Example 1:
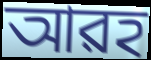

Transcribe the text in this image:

আৱহ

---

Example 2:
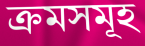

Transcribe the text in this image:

ক্ৰমসমূহ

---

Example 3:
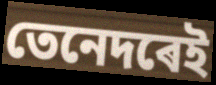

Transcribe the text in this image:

তেনেদৰেই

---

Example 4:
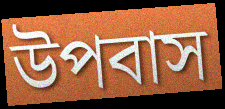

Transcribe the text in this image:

উপবাস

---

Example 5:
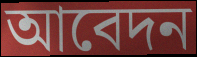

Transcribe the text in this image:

আবেদন